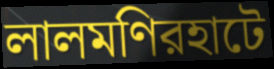
লালমণিরহাটে